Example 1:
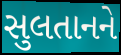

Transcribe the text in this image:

સુલતાનને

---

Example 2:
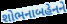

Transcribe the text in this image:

શોભનાબહેનને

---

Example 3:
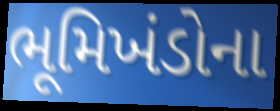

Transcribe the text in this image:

ભૂમિખંડોના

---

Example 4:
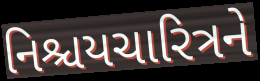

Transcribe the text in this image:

નિશ્ચયચારિત્રને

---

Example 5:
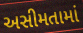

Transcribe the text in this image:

અસીમતામાં